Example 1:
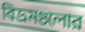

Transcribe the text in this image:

বিভ্রমগুলোর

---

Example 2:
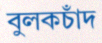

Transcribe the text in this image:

বুলকচাঁদ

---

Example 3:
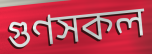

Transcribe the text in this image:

গুণসকল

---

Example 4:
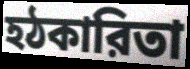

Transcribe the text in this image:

হঠকারিতা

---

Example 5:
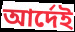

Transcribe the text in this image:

আর্দেই